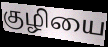
குழியை